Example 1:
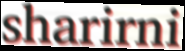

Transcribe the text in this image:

sharirni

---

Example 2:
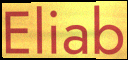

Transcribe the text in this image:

Eliab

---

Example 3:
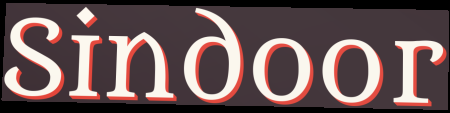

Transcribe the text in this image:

Sindoor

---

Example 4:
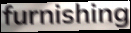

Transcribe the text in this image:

furnishing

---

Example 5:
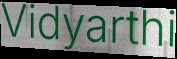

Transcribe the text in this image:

Vidyarthi